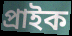
প্রাইক